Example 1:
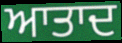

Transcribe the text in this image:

ਆਤਾਦ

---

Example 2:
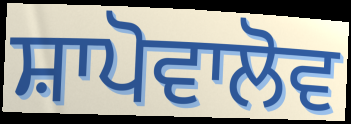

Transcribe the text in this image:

ਸ਼ਾਪੋਵਾਲੋਵ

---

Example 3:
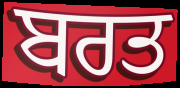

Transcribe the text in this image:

ਬਰਤ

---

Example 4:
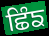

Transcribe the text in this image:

ਛਿੰਙ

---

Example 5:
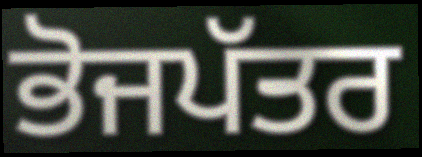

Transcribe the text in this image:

ਭੋਜਪੱਤਰ